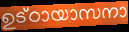
ഉട്ഠായാസനാ